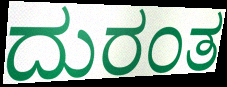
ದುರಂತ